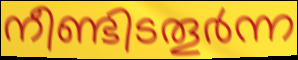
നീണ്ടിടതൂർന്ന